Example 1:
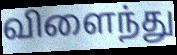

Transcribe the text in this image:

விளைந்து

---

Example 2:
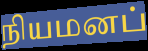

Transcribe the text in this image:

நியமனப்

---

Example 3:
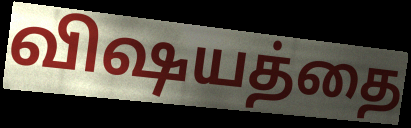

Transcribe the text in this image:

விஷயத்தை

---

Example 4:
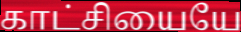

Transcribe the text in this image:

காட்சியையே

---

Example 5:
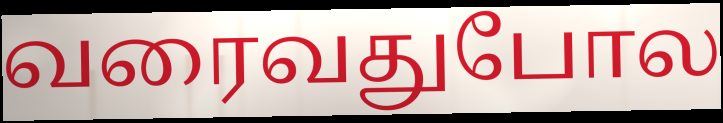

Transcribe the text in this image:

வரைவதுபோல